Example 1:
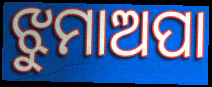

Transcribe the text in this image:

ଝୁମାଅପା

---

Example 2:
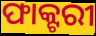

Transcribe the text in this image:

ଫାକ୍ଟରୀ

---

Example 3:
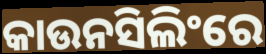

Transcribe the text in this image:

କାଉନସିଲିଂରେ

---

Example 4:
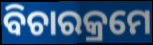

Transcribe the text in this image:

ବିଚାରକ୍ରମେ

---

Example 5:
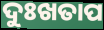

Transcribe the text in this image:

ଦୁଃଖତାପ